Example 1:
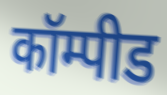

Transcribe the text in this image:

कॉम्पीड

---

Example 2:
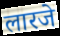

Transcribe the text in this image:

लारजे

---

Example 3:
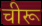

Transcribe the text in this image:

चीरू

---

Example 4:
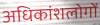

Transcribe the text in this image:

अधिकांशलोगों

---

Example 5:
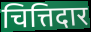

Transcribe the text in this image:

चित्तिदार